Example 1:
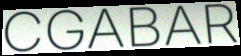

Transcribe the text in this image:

CGABAR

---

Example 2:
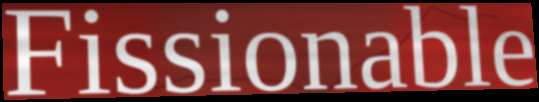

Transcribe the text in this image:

Fissionable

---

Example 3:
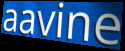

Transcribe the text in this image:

aavine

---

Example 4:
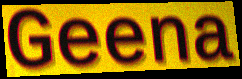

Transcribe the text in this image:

Geena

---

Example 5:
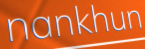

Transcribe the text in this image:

nankhun